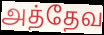
அத்தேவ